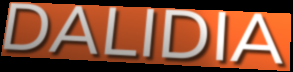
DALIDIA